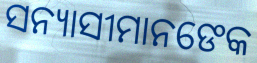
ସନ୍ୟାସୀମାନଙେକ